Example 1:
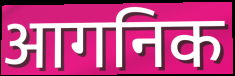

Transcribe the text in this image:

आगनिक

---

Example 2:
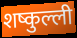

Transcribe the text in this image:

शष्कुल्ली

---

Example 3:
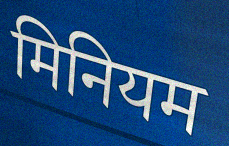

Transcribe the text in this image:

मिनियम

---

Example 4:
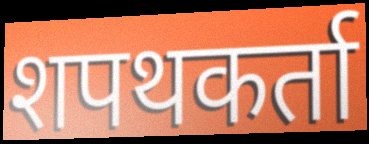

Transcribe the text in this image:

शपथकर्ता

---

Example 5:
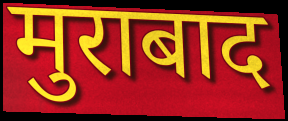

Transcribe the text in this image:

मुराबाद